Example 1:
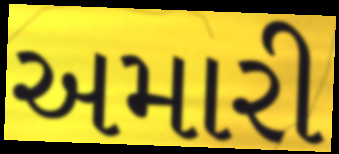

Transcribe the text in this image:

અમારી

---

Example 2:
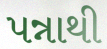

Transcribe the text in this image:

પન્નાથી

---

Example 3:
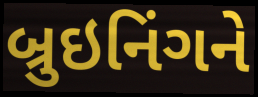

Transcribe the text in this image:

બ્રુઇનિંગને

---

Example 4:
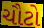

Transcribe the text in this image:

ચૌટો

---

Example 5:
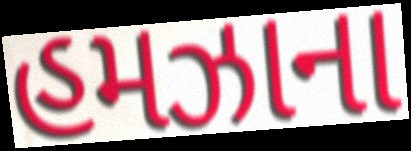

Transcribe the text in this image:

હમઝાના